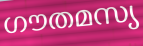
ഗൗതമസ്യ